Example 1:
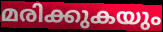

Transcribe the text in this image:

മരിക്കുകയും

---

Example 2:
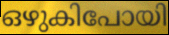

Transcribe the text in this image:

ഒഴുകിപോയി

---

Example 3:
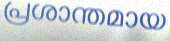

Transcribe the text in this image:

പ്രശാന്തമായ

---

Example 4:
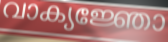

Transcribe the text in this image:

വാക്യജ്ഞോ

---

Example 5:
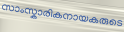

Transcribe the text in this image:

സാംസ്കാരികനായകരുടെ